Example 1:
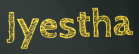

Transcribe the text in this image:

Jyestha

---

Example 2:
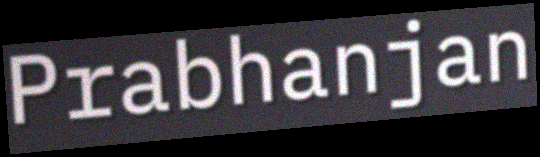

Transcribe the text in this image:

Prabhanjan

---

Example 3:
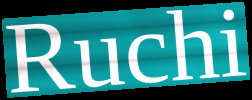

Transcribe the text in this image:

Ruchi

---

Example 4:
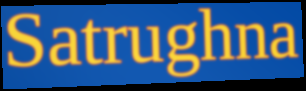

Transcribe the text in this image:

Satrughna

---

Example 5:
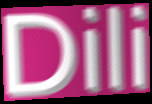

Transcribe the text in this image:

Dili